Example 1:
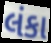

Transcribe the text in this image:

લંકા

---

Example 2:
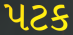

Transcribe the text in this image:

પટક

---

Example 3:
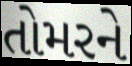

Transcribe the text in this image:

તોમરને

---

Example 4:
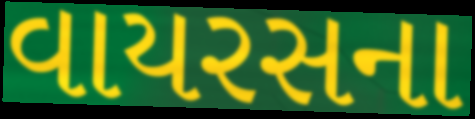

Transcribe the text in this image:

વાયરસના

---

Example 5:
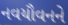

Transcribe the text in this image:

નવયૌવનને